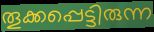
തൂക്കപ്പെട്ടിരുന്ന